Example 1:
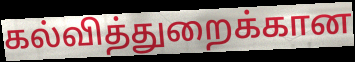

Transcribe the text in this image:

கல்வித்துறைக்கான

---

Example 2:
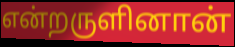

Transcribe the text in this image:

என்றருளினான்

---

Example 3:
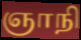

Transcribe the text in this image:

ஞாநி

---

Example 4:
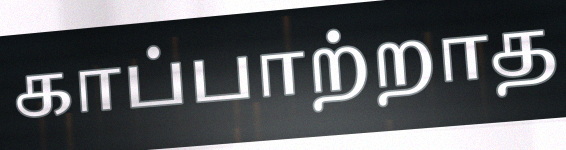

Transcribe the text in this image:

காப்பாற்றாத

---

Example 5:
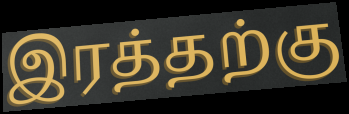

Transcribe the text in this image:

இரத்தற்கு